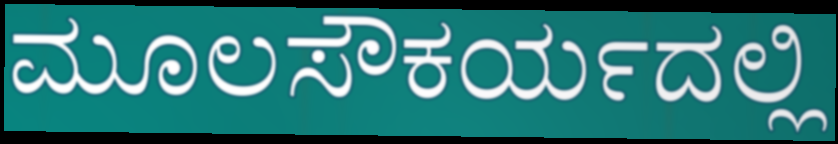
ಮೂಲಸೌಕರ್ಯದಲ್ಲಿ